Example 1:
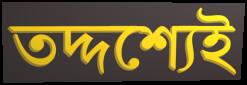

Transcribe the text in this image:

তদ্দশ্যেই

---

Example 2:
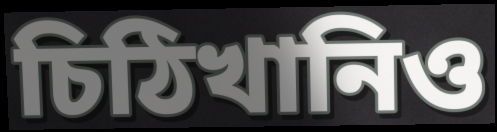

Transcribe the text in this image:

চিঠিখানিও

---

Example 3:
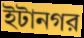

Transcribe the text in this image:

ইটানগর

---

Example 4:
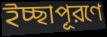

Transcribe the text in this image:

ইচ্ছাপূরণে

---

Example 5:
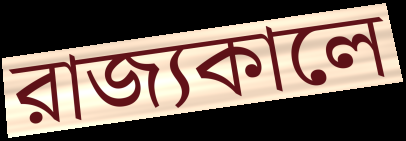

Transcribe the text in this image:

রাজ্যকালে